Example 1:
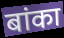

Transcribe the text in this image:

बांका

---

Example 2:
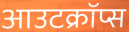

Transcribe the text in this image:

आउटक्रॉप्स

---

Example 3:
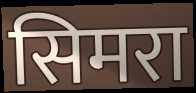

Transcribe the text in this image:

सिमरा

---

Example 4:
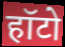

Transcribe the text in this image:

हॉटो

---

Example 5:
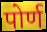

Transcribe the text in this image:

पोर्ण